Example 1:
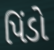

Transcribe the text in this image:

પિંડો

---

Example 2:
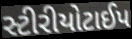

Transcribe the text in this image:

સ્ટીરીયોટાઈપ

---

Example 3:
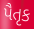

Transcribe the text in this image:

પૈતૃક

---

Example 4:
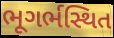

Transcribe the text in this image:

ભૂગર્ભસ્થિત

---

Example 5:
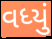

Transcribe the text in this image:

વધ્યું